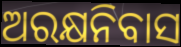
ଅରକ୍ଷନିବାସ